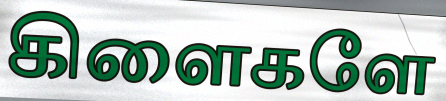
கிளைகளே